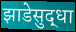
झाडेसुद्धा